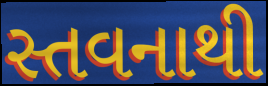
સ્તવનાથી